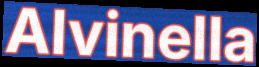
Alvinella